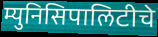
म्युनिसिपालिटीचे